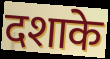
दशाके